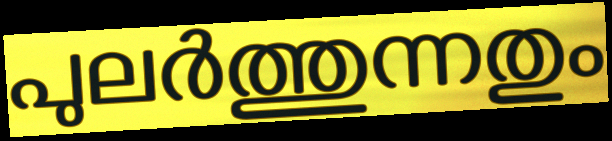
പുലർത്തുന്നതും